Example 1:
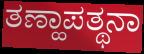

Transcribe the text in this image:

ತಣ್ಹಾಪತ್ಥನಾ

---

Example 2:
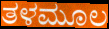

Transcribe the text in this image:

ತಳಮೂಲ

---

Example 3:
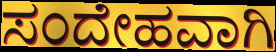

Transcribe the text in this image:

ಸಂದೇಹವಾಗಿ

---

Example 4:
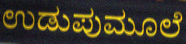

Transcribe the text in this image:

ಉಡುಪುಮೂಲೆ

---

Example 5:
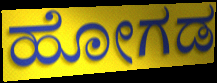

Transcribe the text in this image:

ಹೋಗಡ